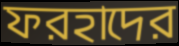
ফরহাদের